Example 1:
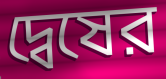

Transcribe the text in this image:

দ্বেষের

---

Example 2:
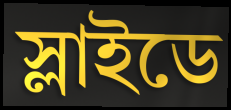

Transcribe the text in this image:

স্লাইডে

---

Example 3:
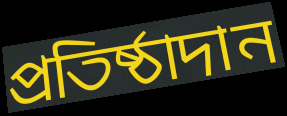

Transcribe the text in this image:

প্রতিষ্ঠাদান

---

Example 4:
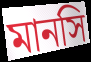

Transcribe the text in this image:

মানসি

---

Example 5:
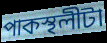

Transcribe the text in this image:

পাকস্থলীটা